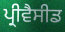
ਪ੍ਰੀਵੈਸੀਡ